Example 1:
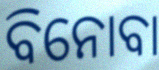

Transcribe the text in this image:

ବିନୋବା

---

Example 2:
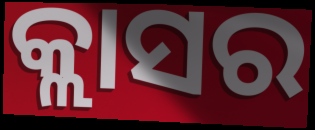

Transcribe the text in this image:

କ୍ଲାସର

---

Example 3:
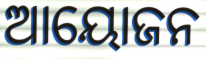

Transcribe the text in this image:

ଆୟୋଜନ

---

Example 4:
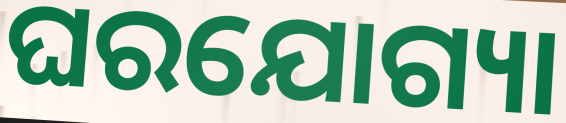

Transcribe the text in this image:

ଘରଯୋଗ୍ୟା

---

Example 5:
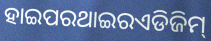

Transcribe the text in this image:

ହାଇପରଥାଇରଏଡିଜିମ୍